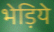
भेड़िये